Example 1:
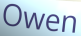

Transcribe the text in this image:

Owen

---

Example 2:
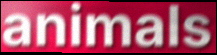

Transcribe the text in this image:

animals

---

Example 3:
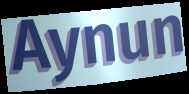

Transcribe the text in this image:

Aynun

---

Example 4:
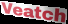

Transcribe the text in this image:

Veatch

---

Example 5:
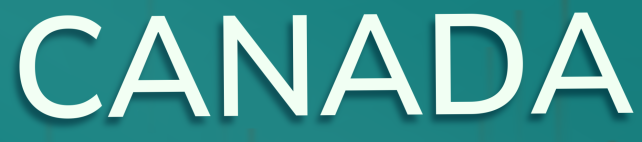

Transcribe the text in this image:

CANADA